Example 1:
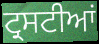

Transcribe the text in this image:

ਟ੍ਰਸਟੀਆਂ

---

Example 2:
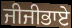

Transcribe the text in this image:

ਜੀਜੀਭਾਏ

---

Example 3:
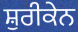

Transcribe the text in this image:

ਸ਼ੁਰੀਕੇਨ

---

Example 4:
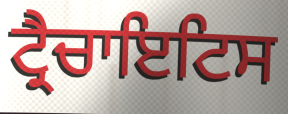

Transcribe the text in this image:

ਟ੍ਰੈਚਾਇਟਿਸ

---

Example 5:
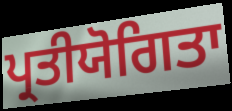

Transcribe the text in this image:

ਪ੍ਰਤੀਯੋਗਿਤਾ